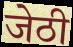
जेठी